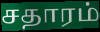
சதாரம்